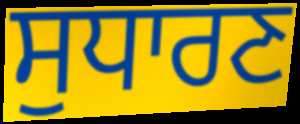
ਸੁਧਾਰਣ